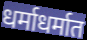
धर्माधर्मात